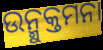
ଉନ୍ମୁକ୍ତମନା